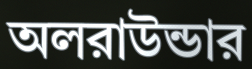
অলরাউন্ডার